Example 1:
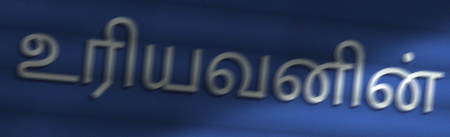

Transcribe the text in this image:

உரியவனின்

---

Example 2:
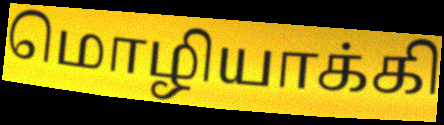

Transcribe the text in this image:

மொழியாக்கி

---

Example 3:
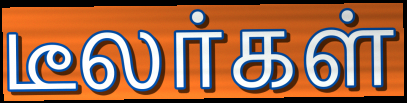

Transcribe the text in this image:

டீலர்கள்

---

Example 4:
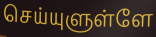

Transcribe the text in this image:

செய்யுளுள்ளே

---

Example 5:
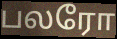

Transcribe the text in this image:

பலரோ